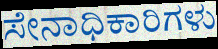
ಸೇನಾಧಿಕಾರಿಗಳು